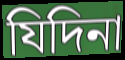
যিদিনা